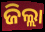
ଜିଲ୍ଲା